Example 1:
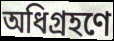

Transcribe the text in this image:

অধিগ্রহণে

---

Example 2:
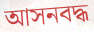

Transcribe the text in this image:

আসনবদ্ধ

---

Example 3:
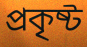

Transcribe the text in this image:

প্রকৃষ্ট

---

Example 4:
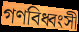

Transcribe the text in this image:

গণবিধ্বংসী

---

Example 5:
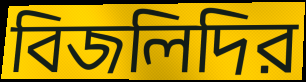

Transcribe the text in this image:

বিজলিদির